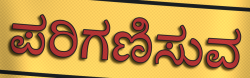
ಪರಿಗಣಿಸುವ